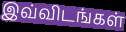
இவ்விடங்கள்